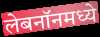
लेबनॉनमध्ये